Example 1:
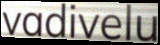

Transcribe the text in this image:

vadivelu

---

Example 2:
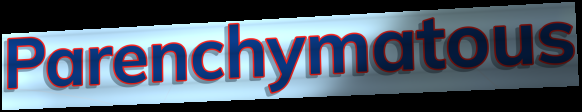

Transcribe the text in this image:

Parenchymatous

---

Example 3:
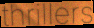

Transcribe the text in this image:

thrillers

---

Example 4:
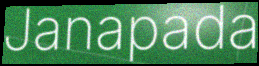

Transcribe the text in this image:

Janapada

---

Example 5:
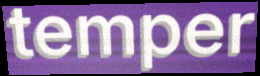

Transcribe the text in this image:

temper